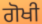
ਗੋਖੀ